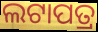
ଲଟାପତ୍ର